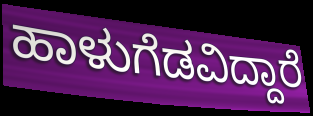
ಹಾಳುಗೆಡವಿದ್ದಾರೆ